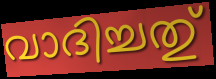
വാദിച്ചതു്